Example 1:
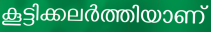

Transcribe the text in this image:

കൂട്ടിക്കലർത്തിയാണ്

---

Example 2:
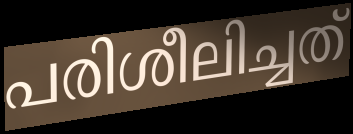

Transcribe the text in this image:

പരിശീലിച്ചത്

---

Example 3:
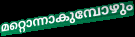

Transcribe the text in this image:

മറ്റൊന്നാകുമ്പോഴും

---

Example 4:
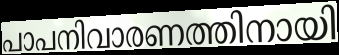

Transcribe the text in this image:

പാപനിവാരണത്തിനായി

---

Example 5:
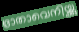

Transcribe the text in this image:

ഭ്രാതാവെനിയ്ക്കു